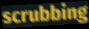
scrubbing